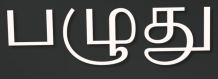
பழுது